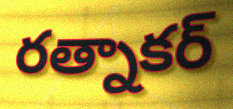
రత్నాకర్